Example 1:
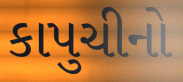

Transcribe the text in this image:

કાપુચીનો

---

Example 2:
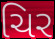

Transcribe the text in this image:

ચિર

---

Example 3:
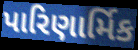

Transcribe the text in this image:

પારિણાર્મિક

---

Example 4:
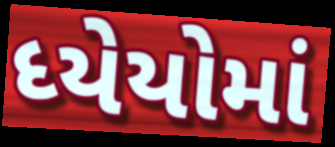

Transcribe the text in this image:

ધ્યેયોમાં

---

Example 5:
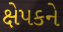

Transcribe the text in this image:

ક્ષેપકને